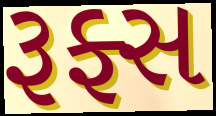
રૂફ્સ